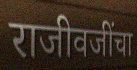
राजीवजींचा